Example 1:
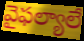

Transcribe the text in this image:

వైఫల్యాలే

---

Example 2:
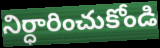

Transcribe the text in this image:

నిర్ధారించుకోండి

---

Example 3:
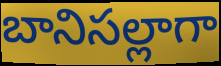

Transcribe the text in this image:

బానిసల్లాగా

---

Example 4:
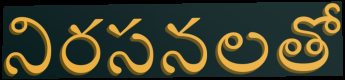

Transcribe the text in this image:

నిరసనలతో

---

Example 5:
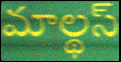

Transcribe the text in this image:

మాల్థస్